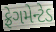
ફ્રેગમેન્ટેડ